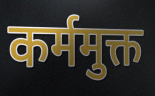
कर्ममुक्त